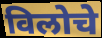
विलोचे